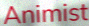
Animist